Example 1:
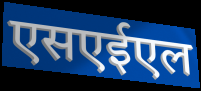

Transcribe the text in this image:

एसएईएल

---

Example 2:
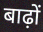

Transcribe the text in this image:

बाढ़ों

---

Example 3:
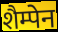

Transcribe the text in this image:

शैम्पेन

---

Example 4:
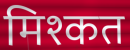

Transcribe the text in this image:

मिश्कत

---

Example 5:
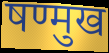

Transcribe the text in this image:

षण्मुख